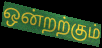
ஒன்றற்கும்